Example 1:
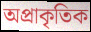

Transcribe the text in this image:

অপ্রাকৃতিক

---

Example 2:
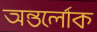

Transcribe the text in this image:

অন্তর্লোক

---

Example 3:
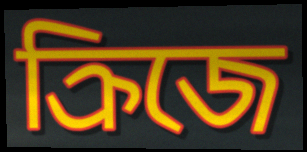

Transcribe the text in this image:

ক্রিজে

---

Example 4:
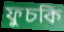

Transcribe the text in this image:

ফুচকি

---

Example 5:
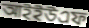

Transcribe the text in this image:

আইইউএফ